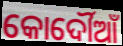
କୋର୍ଦୌଆଁ